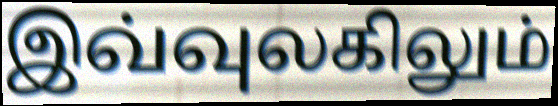
இவ்வுலகிலும்